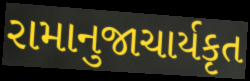
રામાનુજાચાર્યકૃત